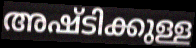
അഷ്ടിക്കുള്ള